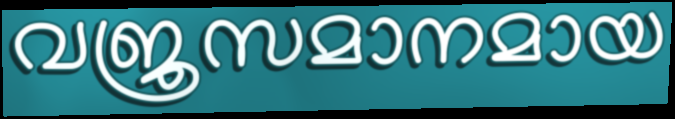
വജ്രസമാനമായ